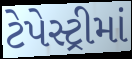
ટેપેસ્ટ્રીમાં